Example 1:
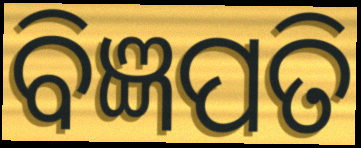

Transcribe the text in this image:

ବିଜ୍ଞପତି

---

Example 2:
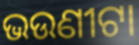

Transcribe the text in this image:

ଭଉଣୀଟା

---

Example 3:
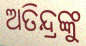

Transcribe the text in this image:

ଅତିନ୍ଦ୍ରଙ୍କୁ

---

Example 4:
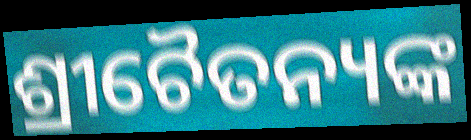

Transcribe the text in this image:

ଶ୍ରୀଚୈତନ୍ୟଙ୍କ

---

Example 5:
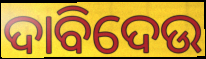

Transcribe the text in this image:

ଦାବିଦେଉ